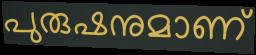
പുരുഷനുമാണ്